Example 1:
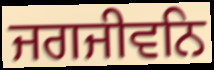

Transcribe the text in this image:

ਜਗਜੀਵਨਿ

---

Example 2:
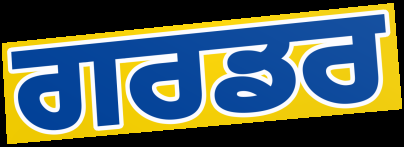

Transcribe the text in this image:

ਗਰਡਰ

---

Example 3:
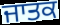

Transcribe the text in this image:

ਜਾਤਕ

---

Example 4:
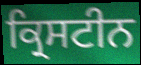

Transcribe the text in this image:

ਕ੍ਰਿਸਟੀਨ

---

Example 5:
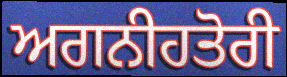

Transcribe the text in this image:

ਅਗਨੀਹਤੋਰੀ